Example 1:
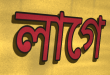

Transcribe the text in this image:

লাগে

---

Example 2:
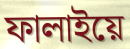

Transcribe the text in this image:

ফালাইয়ে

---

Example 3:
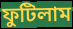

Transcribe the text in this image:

ফুটিলাম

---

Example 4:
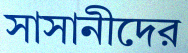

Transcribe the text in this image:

সাসানীদের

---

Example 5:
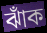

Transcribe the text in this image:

ঝাঁক